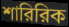
শারিরিক